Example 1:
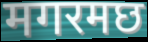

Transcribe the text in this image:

मगरमछ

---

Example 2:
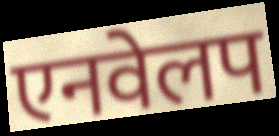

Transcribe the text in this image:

एनवेलप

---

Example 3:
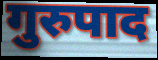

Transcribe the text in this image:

गुरुपाद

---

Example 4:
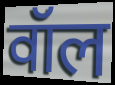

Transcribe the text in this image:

वॉल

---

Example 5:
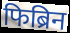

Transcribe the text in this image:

फिब्रिन